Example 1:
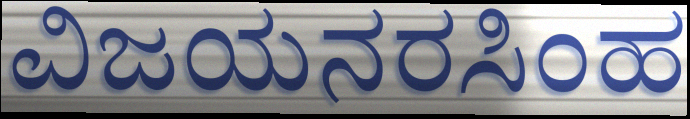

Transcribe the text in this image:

ವಿಜಯನರಸಿಂಹ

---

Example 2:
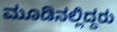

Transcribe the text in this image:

ಮೂಡಿನಲ್ಲಿದ್ದರು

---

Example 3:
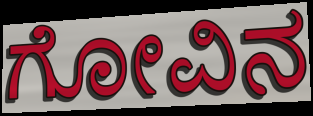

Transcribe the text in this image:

ಗೋವಿನ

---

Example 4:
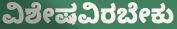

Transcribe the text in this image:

ವಿಶೇಷವಿರಬೇಕು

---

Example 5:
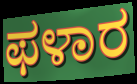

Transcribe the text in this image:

ಫಳಾರ